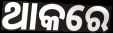
ଥାକରେ